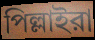
পিল্লাইরা